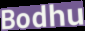
Bodhu